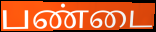
பண்டை